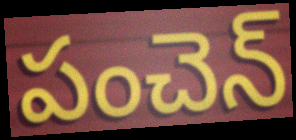
పంచెన్